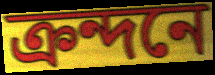
ক্রন্দনে